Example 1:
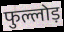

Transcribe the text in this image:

फुल्लोड़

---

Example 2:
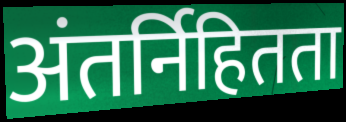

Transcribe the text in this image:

अंतर्निहितता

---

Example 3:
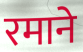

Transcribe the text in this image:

रमाने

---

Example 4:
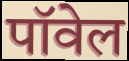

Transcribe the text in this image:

पॉवेल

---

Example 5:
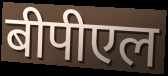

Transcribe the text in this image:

बीपीएल